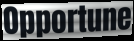
Opportune